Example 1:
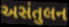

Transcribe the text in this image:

અસંતુલન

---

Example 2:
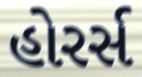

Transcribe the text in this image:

હોરર્સ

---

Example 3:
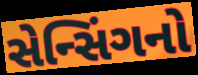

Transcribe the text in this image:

સેન્સિંગનો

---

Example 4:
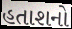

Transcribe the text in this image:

હતાશનો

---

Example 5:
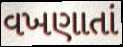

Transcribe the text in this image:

વખણાતાં